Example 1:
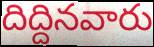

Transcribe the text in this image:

దిద్దినవారు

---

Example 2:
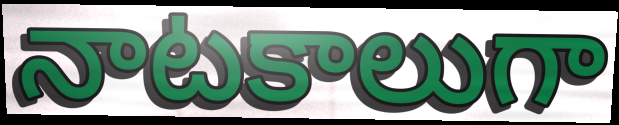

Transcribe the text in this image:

నాటకాలుగా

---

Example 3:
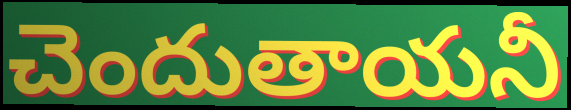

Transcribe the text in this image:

చెందుతాయనీ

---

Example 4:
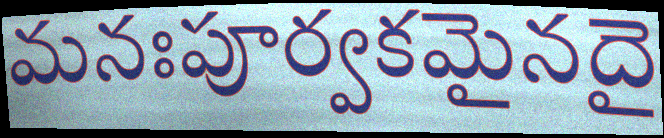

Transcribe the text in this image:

మనఃపూర్వకమైనదై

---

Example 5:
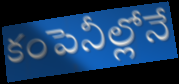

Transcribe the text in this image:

కంపెనీల్లోనే